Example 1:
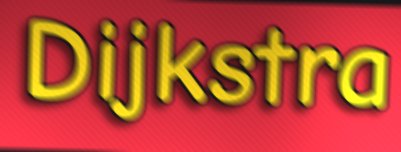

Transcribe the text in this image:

Dijkstra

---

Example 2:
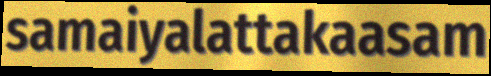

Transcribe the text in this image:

samaiyalattakaasam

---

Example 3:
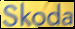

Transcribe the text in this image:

Skoda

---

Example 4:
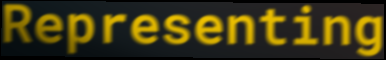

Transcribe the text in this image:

Representing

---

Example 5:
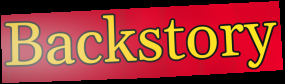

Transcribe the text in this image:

Backstory